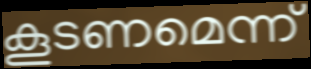
കൂടണമെന്ന്